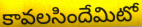
కావలసిందేమిటో